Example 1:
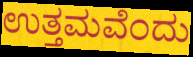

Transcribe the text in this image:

ಉತ್ತಮವೆಂದು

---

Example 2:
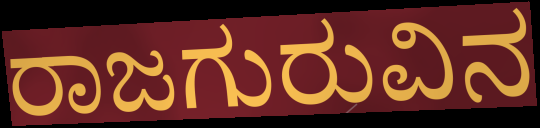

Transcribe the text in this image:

ರಾಜಗುರುವಿನ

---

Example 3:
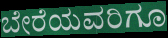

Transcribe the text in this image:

ಬೇರೆಯವರಿಗೂ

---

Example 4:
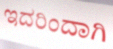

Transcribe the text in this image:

ಇದರಿಂದಾಗಿ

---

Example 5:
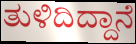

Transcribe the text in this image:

ತುಳಿದಿದ್ದಾನೆ